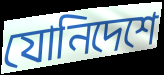
যোনিদেশে